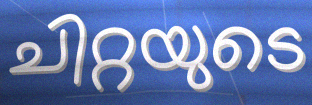
ചിറ്റയുടെ